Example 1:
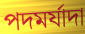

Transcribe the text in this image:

পদমৰ্যাদা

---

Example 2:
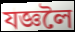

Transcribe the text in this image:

যজ্ঞলৈ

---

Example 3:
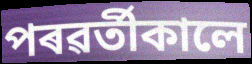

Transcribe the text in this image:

পৰৱৰ্তীকালে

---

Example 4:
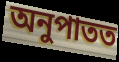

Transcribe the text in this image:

অনুপাতত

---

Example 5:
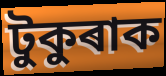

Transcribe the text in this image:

টুকুৰাক